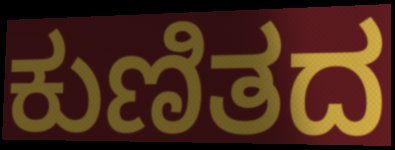
ಕುಣಿತದ